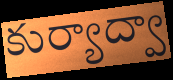
కుర్యాద్వా